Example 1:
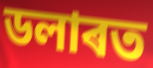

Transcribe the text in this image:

ডলাৰত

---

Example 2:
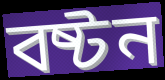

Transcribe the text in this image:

বষ্টন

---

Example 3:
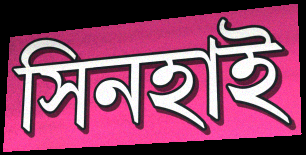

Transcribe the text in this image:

সিনহাই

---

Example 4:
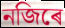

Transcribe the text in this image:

নজিৰে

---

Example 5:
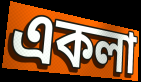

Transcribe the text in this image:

একলা